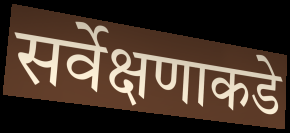
सर्वेक्षणाकडे